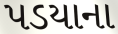
પડયાના